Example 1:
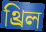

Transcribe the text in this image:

থ্রিল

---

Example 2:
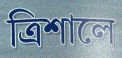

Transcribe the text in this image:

ত্রিশালে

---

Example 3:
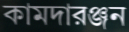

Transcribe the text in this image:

কামদারঞ্জন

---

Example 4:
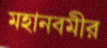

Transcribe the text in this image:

মহানবমীর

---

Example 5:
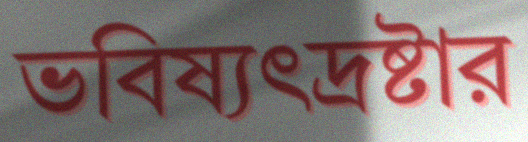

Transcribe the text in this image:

ভবিষ্যৎদ্রষ্টার